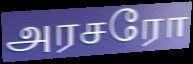
அரசரோ